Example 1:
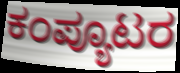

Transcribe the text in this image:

ಕಂಪ್ಯೂಟರ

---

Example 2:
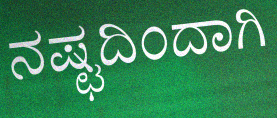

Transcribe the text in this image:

ನಷ್ಟದಿಂದಾಗಿ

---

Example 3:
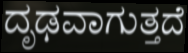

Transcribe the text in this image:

ದೃಢವಾಗುತ್ತದೆ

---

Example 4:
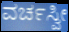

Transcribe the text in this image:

ವರ್ಚಸ್ವೀ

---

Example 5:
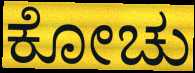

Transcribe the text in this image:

ಕೋಚು